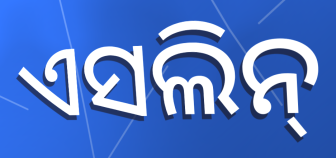
ଏସଲିନ୍